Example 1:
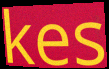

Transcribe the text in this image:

kes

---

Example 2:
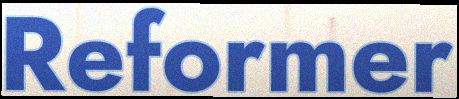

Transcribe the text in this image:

Reformer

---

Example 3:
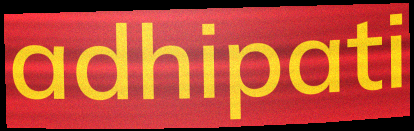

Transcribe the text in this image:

adhipati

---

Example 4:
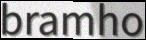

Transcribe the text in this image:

bramho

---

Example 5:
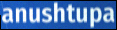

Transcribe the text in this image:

anushtupa